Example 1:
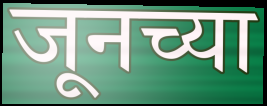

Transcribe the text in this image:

जूनच्या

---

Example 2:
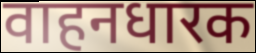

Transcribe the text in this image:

वाहनधारक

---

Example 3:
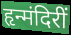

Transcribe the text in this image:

हृन्मंदिरीं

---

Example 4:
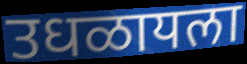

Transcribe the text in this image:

उधळायला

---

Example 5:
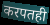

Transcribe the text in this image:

करपतही